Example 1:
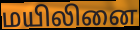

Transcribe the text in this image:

மயிலினை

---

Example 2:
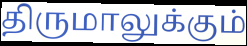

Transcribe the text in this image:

திருமாலுக்கும்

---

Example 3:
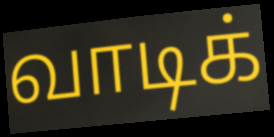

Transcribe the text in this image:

வாடிக்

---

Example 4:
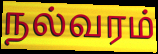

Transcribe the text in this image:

நல்வரம்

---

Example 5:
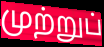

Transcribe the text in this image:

முற்றுப்